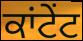
ਕਾਂਟੇਂਟ